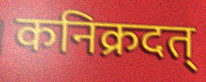
कनिक्रदत्